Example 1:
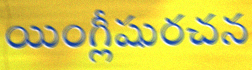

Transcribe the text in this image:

యింగ్లీషురచన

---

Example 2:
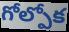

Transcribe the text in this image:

గోల్పోక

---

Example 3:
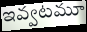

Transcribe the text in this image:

ఇవ్వటమూ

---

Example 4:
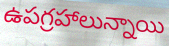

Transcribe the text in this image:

ఉపగ్రహాలున్నాయి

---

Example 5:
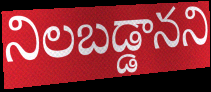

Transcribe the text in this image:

నిలబడ్డానని